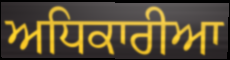
ਅਧਿਕਾਰੀਆ